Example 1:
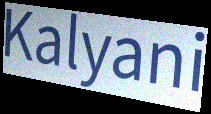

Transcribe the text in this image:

Kalyani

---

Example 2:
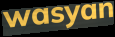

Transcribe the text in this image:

wasyan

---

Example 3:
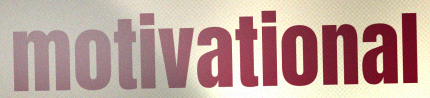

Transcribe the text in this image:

motivational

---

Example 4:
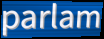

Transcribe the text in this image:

parlam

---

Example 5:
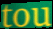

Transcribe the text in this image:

tou